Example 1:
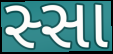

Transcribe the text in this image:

સ્સા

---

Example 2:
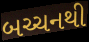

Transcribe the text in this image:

બચ્ચનથી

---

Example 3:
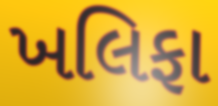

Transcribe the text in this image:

ખલિફા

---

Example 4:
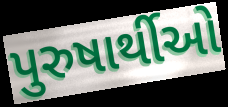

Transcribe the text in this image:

પુરુષાર્થીઓ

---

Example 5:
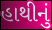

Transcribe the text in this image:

હાથીનું